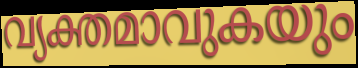
വ്യക്തമാവുകയും